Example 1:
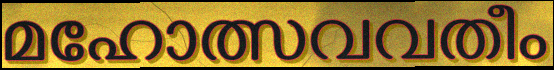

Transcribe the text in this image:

മഹോത്സവവതീം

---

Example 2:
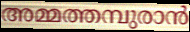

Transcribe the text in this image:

അമ്മത്തമ്പുരാൻ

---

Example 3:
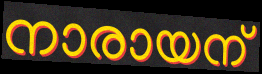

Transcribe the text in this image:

നാരായന്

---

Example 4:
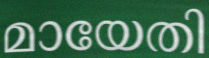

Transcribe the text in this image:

മായേതി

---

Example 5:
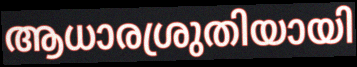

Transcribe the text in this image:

ആധാരശ്രുതിയായി